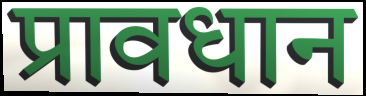
प्रावधान